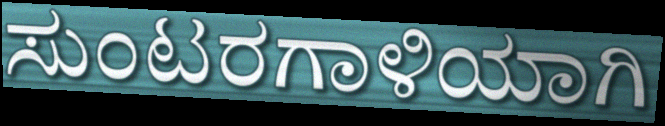
ಸುಂಟರಗಾಳಿಯಾಗಿ